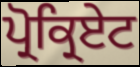
ਪ੍ਰੋਕ੍ਰਿਏਟ